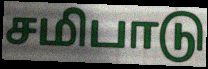
சமிபாடு